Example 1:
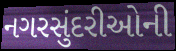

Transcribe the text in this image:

નગરસુંદરીઓની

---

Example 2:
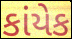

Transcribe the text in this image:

કાંયેક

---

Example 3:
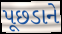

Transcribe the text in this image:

પૂછડાને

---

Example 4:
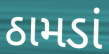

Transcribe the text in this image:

ઠામડાં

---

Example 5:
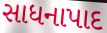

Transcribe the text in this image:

સાધનાપાદ